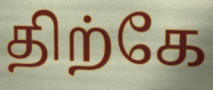
திற்கே